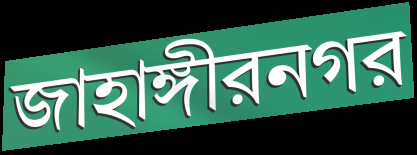
জাহাঙ্গীরনগর